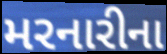
મરનારીના